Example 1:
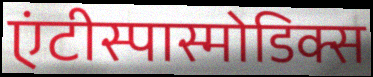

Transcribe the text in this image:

एंटीस्पास्मोडिक्स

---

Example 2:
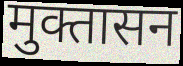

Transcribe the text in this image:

मुक्तासन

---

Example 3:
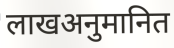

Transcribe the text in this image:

लाखअनुमानित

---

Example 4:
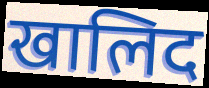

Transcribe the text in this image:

खालिद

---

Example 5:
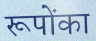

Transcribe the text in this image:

रूपोंका